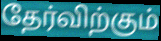
தேர்விற்கும்